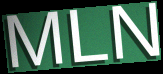
MLN